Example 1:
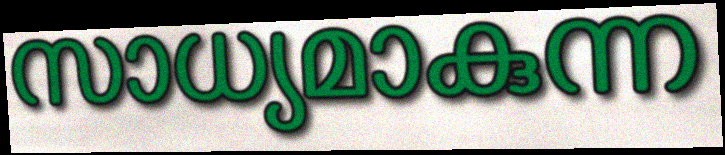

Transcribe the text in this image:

സാധ്യമാകുന്ന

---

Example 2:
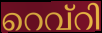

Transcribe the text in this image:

റെവ്റി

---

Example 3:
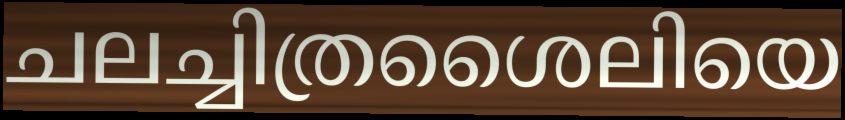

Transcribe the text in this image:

ചലച്ചിത്രശൈലിയെ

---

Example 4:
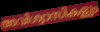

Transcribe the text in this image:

അവിശ്വാസികളും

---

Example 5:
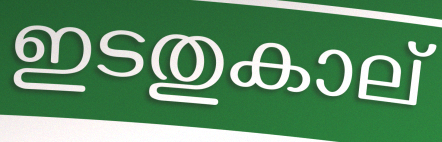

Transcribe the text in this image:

ഇടതുകാല്